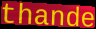
thande